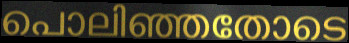
പൊലിഞ്ഞതോടെ